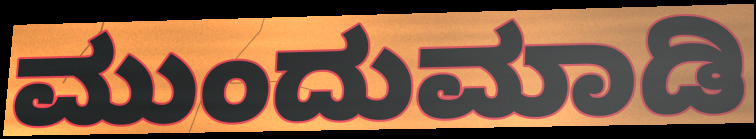
ಮುಂದುಮಾಡಿ